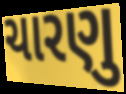
ચારણુ